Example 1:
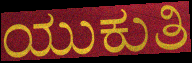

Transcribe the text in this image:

ಯುಕುತಿ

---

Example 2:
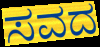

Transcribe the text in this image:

ಸವದ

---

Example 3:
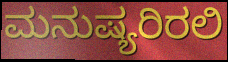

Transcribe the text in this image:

ಮನುಷ್ಯರಿರಲಿ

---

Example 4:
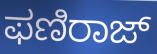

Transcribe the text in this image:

ಫಣಿರಾಜ್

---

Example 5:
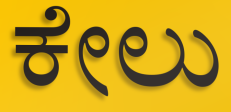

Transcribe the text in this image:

ಕೇಲು